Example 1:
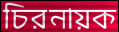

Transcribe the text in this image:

চিরনায়ক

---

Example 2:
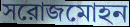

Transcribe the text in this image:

সরোজমোহন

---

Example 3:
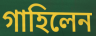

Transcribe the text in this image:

গাহিলেন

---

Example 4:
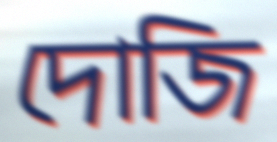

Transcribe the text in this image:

দোজি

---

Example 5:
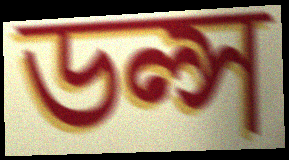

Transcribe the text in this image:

ডল্স